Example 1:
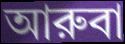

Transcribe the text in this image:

আরুবা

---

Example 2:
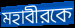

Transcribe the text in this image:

মহাবীরকে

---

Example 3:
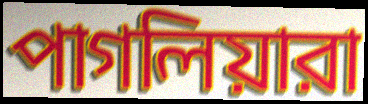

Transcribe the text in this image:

পাগলিয়ারা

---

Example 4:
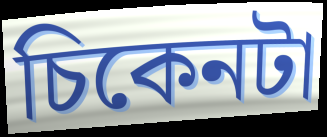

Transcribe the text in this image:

চিকেনটা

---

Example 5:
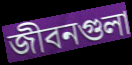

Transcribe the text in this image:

জীবনগুলা